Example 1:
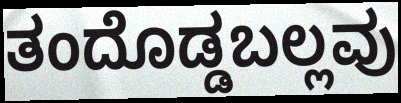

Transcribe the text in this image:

ತಂದೊಡ್ಡಬಲ್ಲವು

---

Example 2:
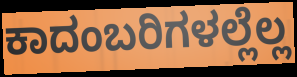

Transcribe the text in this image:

ಕಾದಂಬರಿಗಳಲ್ಲೆಲ್ಲ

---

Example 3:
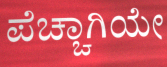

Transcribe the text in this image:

ಪೆಚ್ಚಾಗಿಯೇ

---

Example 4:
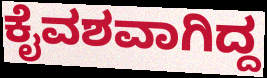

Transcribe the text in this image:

ಕೈವಶವಾಗಿದ್ದ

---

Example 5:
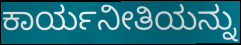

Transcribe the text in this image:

ಕಾರ್ಯನೀತಿಯನ್ನು